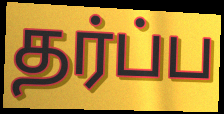
தர்ப்ப